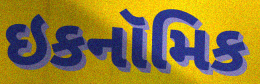
ઇકનૉમિક